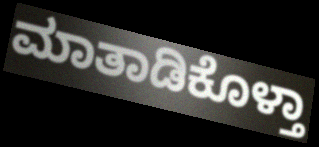
ಮಾತಾಡಿಕೊಳ್ತಾ